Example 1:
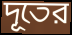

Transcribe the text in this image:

দূতের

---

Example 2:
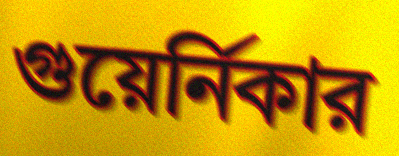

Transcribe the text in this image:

গুয়ের্নিকার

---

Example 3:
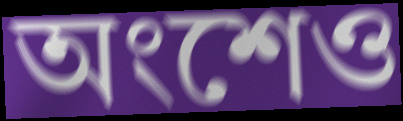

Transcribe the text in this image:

অংশেও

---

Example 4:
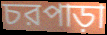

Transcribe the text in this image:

চরপাড়া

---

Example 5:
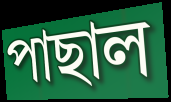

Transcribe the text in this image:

পাছাল